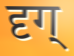
दृग्